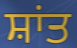
ਸ਼ਾਂਤ